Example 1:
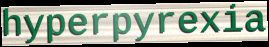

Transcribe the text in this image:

hyperpyrexia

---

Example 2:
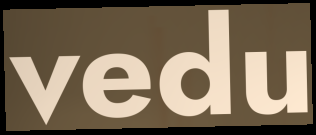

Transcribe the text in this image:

vedu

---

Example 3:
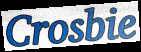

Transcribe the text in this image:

Crosbie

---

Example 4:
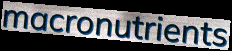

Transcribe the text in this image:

macronutrients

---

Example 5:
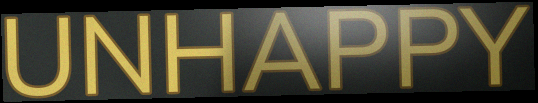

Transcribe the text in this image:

UNHAPPY